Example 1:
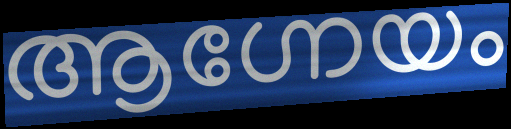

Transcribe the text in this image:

ആഗ്നേയം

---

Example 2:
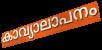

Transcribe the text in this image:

കാവ്യാലാപനം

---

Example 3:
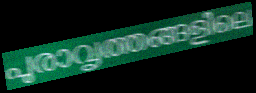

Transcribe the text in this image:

പുരാവൃത്തങ്ങളിലെ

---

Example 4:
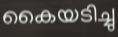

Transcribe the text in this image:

കൈയടിച്ചു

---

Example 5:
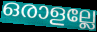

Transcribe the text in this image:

ഒരാളല്ലേ